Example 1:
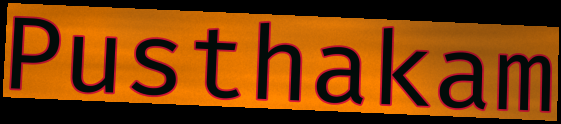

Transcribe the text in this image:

Pusthakam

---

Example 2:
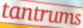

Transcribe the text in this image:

tantrums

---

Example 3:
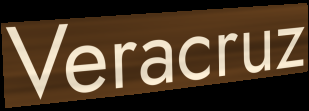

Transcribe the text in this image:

Veracruz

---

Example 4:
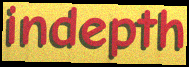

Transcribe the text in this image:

indepth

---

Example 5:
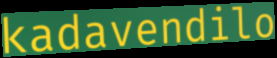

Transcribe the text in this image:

kadavendilo